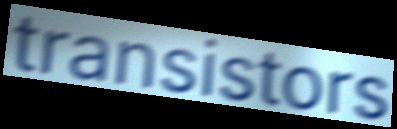
transistors